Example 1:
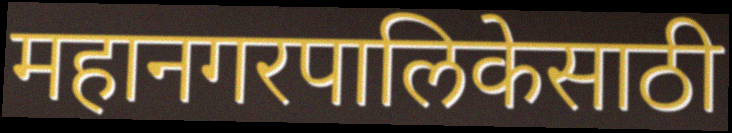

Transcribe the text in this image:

महानगरपालिकेसाठी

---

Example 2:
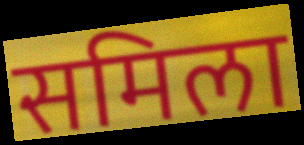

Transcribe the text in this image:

समिला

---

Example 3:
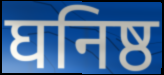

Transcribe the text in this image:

घनिष्ठ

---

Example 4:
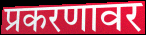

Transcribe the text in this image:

प्रकरणावर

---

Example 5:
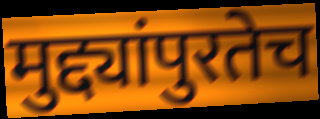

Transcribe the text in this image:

मुद्द्यांपुरतेच